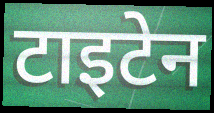
टाइटेन